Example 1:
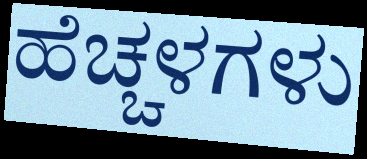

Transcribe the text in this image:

ಹೆಚ್ಚಳಗಳು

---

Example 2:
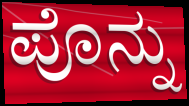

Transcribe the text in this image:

ಪೊನ್ನು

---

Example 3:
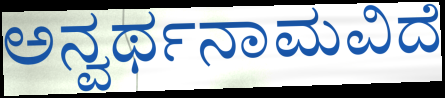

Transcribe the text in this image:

ಅನ್ವರ್ಥನಾಮವಿದೆ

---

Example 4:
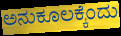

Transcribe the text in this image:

ಅನುಕೂಲಕ್ಕೆಂದು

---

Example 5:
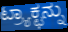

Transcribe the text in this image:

ಟ್ರ್ಯಾಕ್ಟನ್ನು